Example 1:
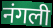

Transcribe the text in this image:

नंगली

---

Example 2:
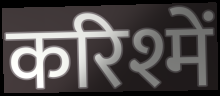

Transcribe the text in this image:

करिश्में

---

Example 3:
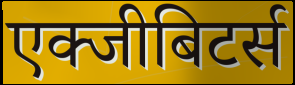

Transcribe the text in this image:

एक्जीबिटर्स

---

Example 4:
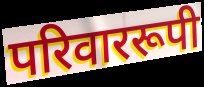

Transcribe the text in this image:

परिवाररूपी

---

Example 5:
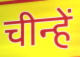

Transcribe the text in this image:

चीन्हें